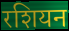
रशियन